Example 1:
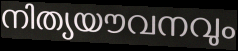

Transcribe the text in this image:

നിത്യയൗവനവും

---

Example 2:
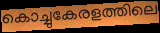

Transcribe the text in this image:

കൊച്ചുകേരളത്തിലെ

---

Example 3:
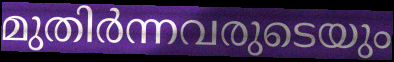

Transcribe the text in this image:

മുതിർന്നവരുടെയും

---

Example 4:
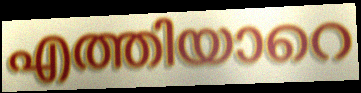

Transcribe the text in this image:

എത്തിയാറെ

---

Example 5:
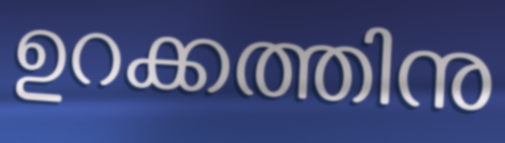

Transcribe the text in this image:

ഉറക്കത്തിനു